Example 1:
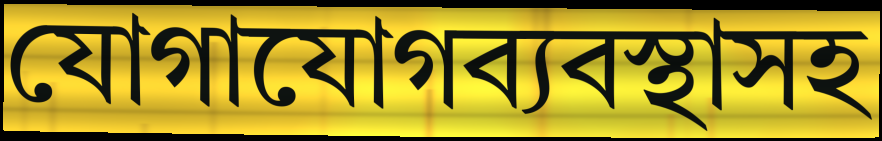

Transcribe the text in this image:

যোগাযোগব্যবস্থাসহ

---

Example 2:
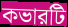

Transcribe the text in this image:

কভারটি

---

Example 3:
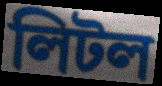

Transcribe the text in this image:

লিটল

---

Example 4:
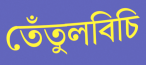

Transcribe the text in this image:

তেঁতুলবিচি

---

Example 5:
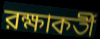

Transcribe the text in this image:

রক্ষাকর্তী